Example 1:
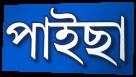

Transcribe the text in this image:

পাইছা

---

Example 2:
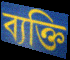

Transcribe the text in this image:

ব্যক্তি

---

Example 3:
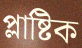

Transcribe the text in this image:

প্লাষ্টিক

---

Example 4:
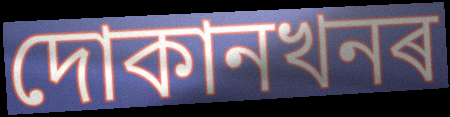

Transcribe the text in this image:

দোকানখনৰ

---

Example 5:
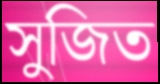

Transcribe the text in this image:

সুজিত